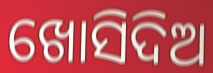
ଖୋସିଦିଅ